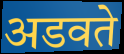
अडवते